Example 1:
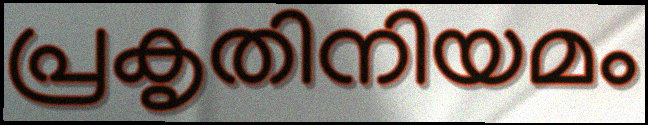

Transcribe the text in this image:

പ്രകൃതിനിയമം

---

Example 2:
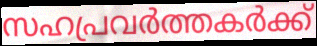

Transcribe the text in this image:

സഹപ്രവർത്തകർക്ക്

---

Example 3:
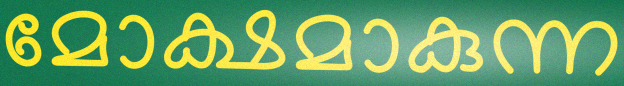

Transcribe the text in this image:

മോക്ഷമാകുന്ന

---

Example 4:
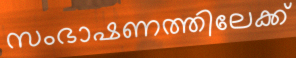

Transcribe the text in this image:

സംഭാഷണത്തിലേക്ക്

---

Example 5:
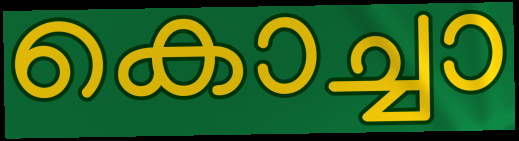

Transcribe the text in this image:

കൊച്ചാ